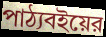
পাঠ্যবইয়ের